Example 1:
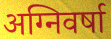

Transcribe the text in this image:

अग्निवर्षा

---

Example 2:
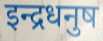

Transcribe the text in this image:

इन्द्रधनुष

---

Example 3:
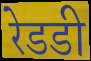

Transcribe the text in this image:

रेडडी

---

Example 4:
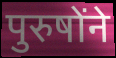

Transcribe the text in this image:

पुरुषोंने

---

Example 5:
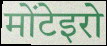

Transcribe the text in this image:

मोंटेइरो